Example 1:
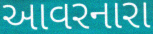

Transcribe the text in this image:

આવરનારા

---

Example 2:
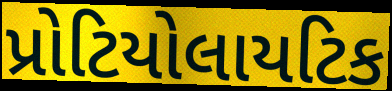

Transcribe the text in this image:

પ્રોટિયોલાયટિક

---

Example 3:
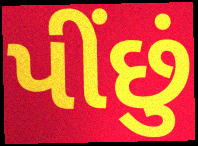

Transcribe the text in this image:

પીંછું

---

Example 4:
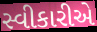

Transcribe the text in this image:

સ્વીકારીએ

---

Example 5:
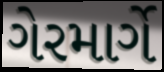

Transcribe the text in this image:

ગેરમાર્ગે